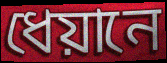
ধেয়ানে